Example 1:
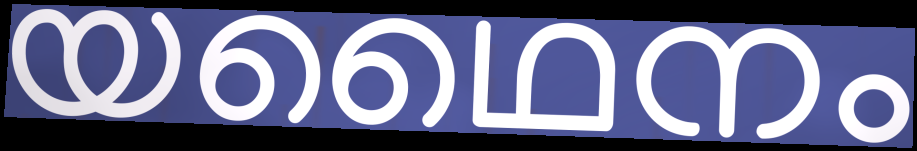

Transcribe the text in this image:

യഥൈനം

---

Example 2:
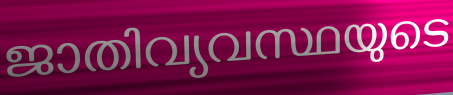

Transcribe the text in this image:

ജാതിവ്യവസ്ഥയുടെ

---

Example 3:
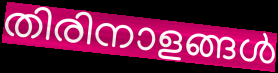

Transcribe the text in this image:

തിരിനാളങ്ങൾ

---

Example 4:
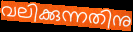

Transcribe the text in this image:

വലിക്കുന്നതിനു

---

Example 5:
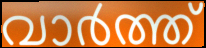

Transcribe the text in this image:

വാർത്ത്